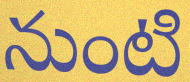
నుంటి